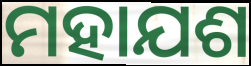
ମହାଯଶ